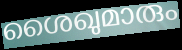
ശൈഖുമാരും